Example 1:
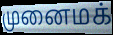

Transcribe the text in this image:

முனைமக்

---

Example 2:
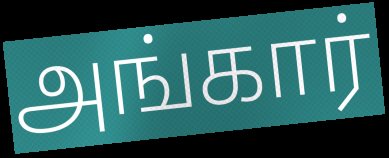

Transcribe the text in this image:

அங்கார்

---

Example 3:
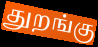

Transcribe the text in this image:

துறங்கு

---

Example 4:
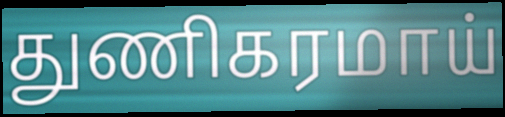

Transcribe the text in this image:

துணிகரமாய்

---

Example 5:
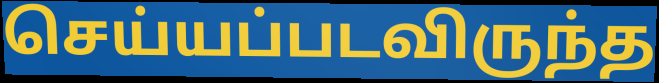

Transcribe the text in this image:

செய்யப்படவிருந்த